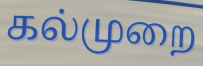
கல்முறை